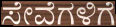
ಸೇವೆಗಳಿಗೆ